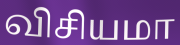
விசியமா